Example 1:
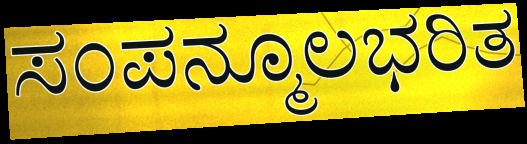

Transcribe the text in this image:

ಸಂಪನ್ಮೂಲಭರಿತ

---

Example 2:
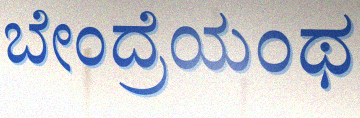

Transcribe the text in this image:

ಬೇಂದ್ರೆಯಂಥ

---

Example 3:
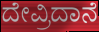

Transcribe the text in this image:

ದೇವ್ರಿದಾನೆ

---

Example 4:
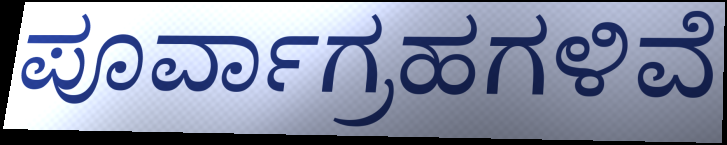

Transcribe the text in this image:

ಪೂರ್ವಾಗ್ರಹಗಳಿವೆ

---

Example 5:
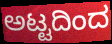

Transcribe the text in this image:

ಅಟ್ಟದಿಂದ